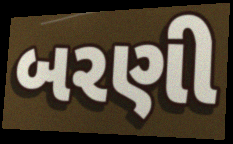
બરણી